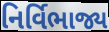
નિર્વિભાજ્ય